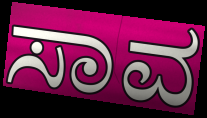
ಸಾವ